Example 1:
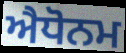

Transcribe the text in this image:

ਐਧੋਨਮ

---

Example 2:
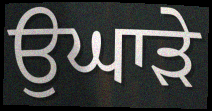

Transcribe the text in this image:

ਉਘਾੜੇ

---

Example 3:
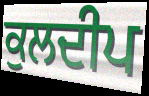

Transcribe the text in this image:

ਕੁਲਦੀਪ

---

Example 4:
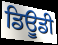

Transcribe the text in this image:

ਡਿਊਡੀ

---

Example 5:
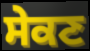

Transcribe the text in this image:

ਸੇਕਣ